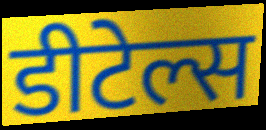
डीटेल्‍स